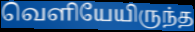
வெளியேயிருந்த